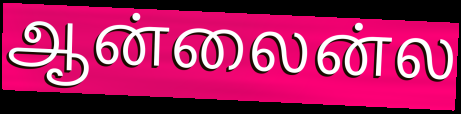
ஆன்லைன்ல